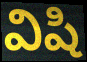
విషి